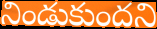
నిండుకుందని